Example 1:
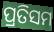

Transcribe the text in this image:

ପ୍ରତିସମ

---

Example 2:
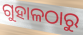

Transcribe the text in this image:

ଗୁହାଳଠାରୁ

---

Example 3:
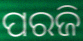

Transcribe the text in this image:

ପରଜି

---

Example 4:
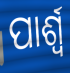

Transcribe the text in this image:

ପାର୍ଶ୍ବ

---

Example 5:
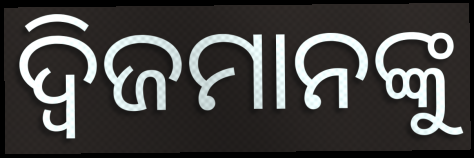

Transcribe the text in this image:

ଦ୍ୱିଜମାନଙ୍କୁ